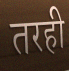
तरही